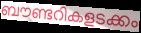
ബൗണ്ടറികളടക്കം